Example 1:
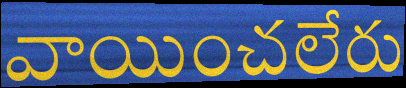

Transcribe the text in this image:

వాయించలేరు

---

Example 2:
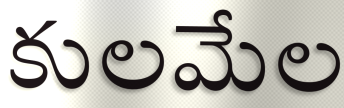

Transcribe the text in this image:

కులమేల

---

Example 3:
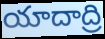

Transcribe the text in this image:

యాదాద్రి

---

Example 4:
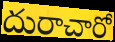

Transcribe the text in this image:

దురాచారో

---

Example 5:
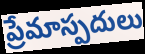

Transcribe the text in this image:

ప్రేమాస్పదులు